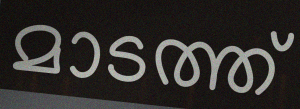
മാടത്ത്